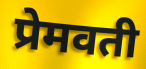
प्रेमवती